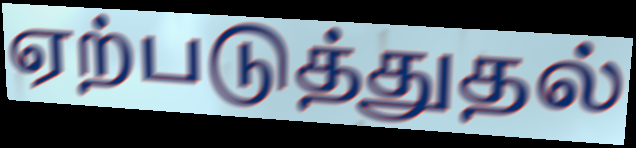
ஏற்படுத்துதல்